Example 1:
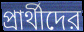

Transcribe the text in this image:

প্রার্থীদের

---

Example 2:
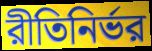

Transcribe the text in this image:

রীতিনির্ভর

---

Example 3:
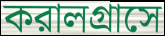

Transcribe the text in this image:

করালগ্রাসে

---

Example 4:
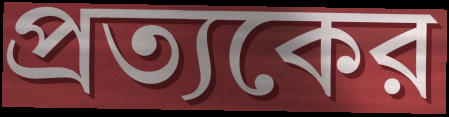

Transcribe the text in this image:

প্রত্যকের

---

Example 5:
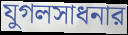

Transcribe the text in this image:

যুগলসাধনার